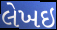
લેખઇ